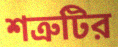
শত্রুটির